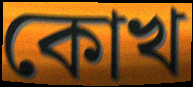
কোখ